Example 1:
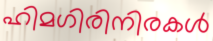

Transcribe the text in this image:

ഹിമഗിരിനിരകൾ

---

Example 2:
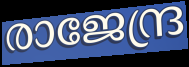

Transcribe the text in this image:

രാജേന്ദ്ര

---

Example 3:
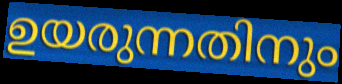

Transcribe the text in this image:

ഉയരുന്നതിനും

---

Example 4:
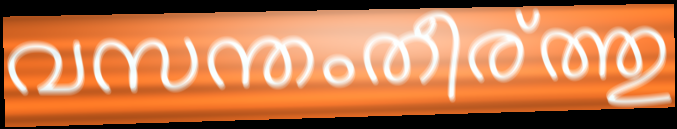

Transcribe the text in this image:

വസന്തംതീര്ത്തു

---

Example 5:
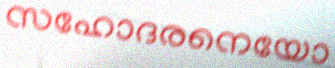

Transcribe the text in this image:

സഹോദരനെയോ